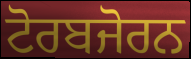
ਟੋਰਬਜੋਰਨ